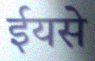
ईयसे